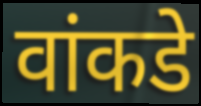
वांकडे